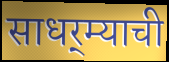
साधर्म्याची